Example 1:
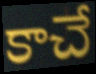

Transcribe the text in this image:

కాచే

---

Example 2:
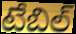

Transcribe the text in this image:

టేబిల్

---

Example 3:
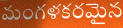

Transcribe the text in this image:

మంగళకరమైన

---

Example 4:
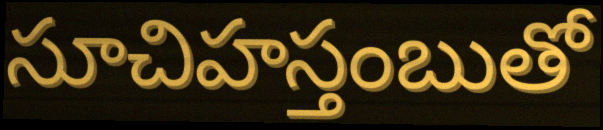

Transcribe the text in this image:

సూచిహస్తంబుతో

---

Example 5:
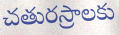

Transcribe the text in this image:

చతురస్రాలకు